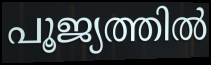
പൂജ്യത്തിൽ